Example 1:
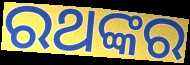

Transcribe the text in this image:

ରଥଙ୍କର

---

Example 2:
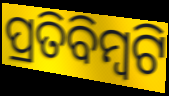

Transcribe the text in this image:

ପ୍ରତିବିମ୍ବଟି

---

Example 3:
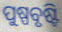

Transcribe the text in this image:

ପୁଷ୍ପବୃଷ୍ଟି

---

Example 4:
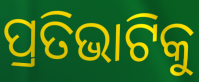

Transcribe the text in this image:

ପ୍ରତିଭାଟିକୁ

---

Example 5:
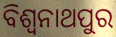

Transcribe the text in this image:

ବିଶ୍ଵନାଥପୁର